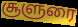
சூளுரை